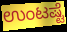
ಉಂಟಷ್ಟೆ